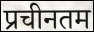
प्रचीनतम